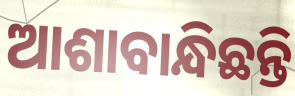
ଆଶାବାନ୍ଧିଛନ୍ତି